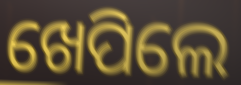
ଖେପିଲେ